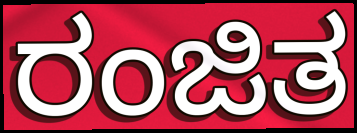
ರಂಜಿತ